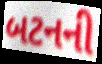
બટનની